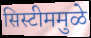
सिस्टीममुळे